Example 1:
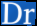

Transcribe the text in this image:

Dr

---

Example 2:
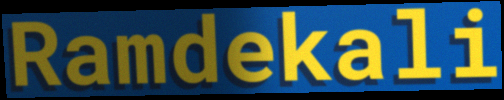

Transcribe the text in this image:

Ramdekali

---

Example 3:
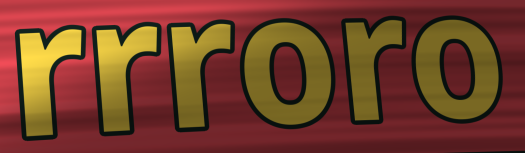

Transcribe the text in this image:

rrroro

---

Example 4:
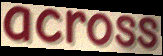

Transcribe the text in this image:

across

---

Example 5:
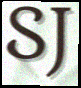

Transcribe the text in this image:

SJ